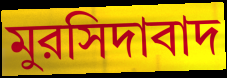
মুরসিদাবাদ